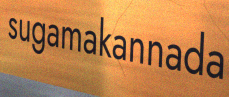
sugamakannada